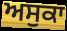
ਅਸੁਕਾ